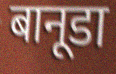
बानूडा